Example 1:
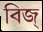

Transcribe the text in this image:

বিজ্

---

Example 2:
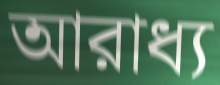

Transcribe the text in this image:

আরাধ্য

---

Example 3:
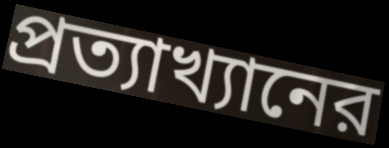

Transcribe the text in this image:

প্রত্যাখ্যানের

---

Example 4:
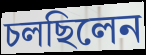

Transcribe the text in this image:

চলছিলেন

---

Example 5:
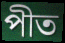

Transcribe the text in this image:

পীত